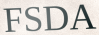
FSDA